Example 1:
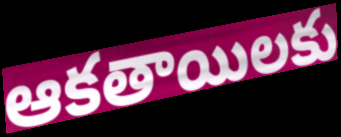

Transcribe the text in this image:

ఆకతాయిలకు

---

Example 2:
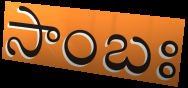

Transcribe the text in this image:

సాంబః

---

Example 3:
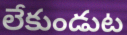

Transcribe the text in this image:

లేకుండుట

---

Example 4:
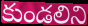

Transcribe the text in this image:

కుండలిని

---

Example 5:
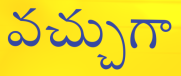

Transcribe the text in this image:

వచ్చుగా